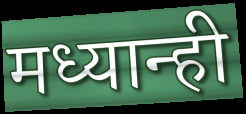
मध्यान्ही